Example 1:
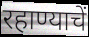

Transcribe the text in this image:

रहाण्याचें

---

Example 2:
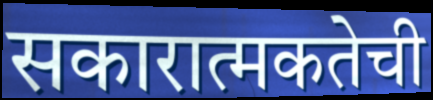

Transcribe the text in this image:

सकारात्मकतेची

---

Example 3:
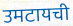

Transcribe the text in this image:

उमटायची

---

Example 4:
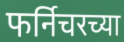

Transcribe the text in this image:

फर्निचरच्या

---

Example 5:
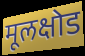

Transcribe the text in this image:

मूलक्षोड